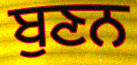
ਬੁਣਨ